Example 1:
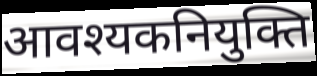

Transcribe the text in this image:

आवश्यकनियुक्ति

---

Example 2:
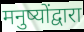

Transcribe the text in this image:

मनुष्योंद्वारा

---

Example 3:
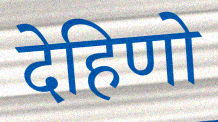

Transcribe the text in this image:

देहिणो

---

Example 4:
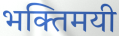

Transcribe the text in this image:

भक्तिमयी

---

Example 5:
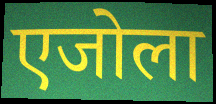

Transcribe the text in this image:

एजोला